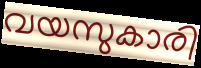
വയസുകാരി